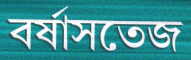
বর্ষাসতেজ